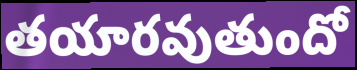
తయారవుతుందో